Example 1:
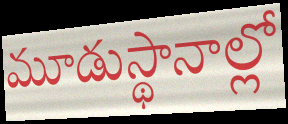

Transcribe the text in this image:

మూడుస్థానాల్లో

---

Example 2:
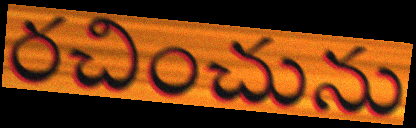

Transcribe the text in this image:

రచించును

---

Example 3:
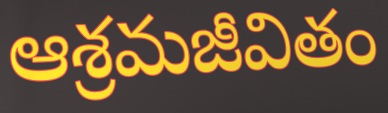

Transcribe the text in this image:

ఆశ్రమజీవితం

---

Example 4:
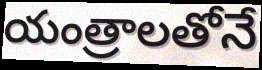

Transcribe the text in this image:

యంత్రాలతోనే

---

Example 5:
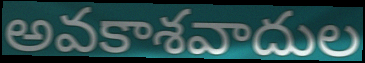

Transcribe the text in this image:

అవకాశవాదుల